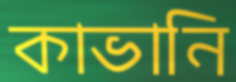
কাভানি